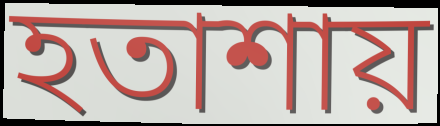
হতাশায়